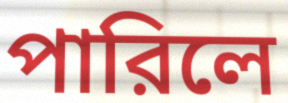
পারিলে